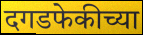
दगडफेकीच्या